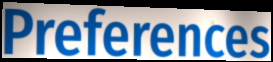
Preferences